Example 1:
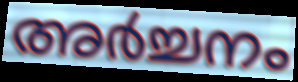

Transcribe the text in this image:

അർച്ചനം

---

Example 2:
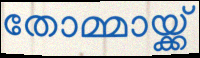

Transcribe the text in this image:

തോമ്മായ്ക്ക്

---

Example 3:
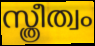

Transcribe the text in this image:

സ്ത്രീത്വം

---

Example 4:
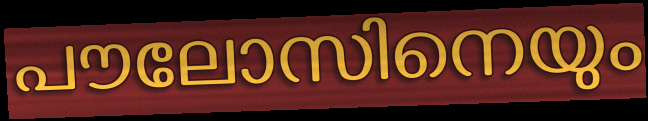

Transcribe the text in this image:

പൗലോസിനെയും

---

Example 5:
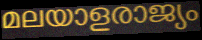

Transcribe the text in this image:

മലയാളരാജ്യം